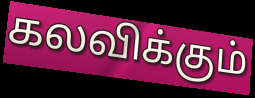
கலவிக்கும்